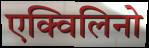
एक्विलिनो